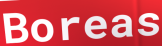
Boreas